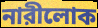
নারীলোক